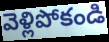
వెళ్లిపోకండి